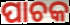
ପାଚକ